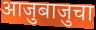
आजुबाजुचा